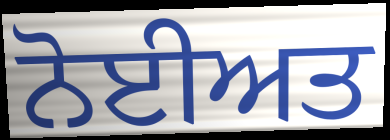
ਨੋਈਅਤ